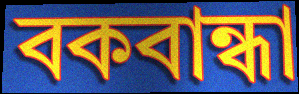
বকবান্ধা